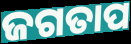
ଜଗତାପ